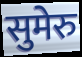
सुमेरु